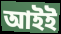
আইই